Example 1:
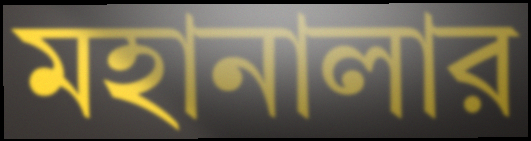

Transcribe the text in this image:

মহানালার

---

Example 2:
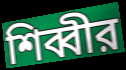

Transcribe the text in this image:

শিব্বীর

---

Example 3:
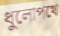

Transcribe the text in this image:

ধুলোপথে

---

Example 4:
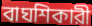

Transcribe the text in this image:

বাঘশিকারী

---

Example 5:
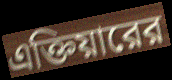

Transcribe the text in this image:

এক্তিয়ারের